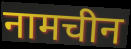
नामचीन